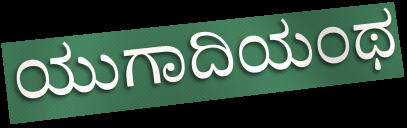
ಯುಗಾದಿಯಂಥ